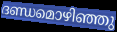
ദണ്ഡമൊഴിഞ്ഞു